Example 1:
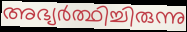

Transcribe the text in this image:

അഭ്യർത്ഥിച്ചിരുന്നു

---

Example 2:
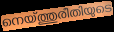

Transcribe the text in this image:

നെയ്ത്തുരീതിയുടെ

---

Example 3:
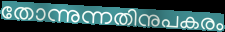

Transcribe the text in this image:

തോന്നുന്നതിനുപകരം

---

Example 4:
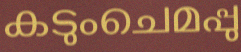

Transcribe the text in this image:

കടുംചെമപ്പു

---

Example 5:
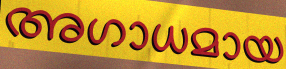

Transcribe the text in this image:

അഗാധമായ